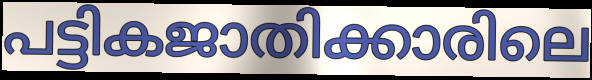
പട്ടികജാതിക്കാരിലെ